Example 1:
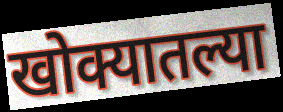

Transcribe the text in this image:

खोक्यातल्या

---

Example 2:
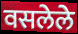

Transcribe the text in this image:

वसलेले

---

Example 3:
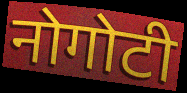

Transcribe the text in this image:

नोगोटी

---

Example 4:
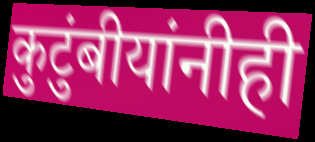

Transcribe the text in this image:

कुटुंबीयांनीही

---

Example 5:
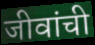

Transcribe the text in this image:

जीवांची